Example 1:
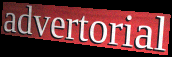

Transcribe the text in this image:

advertorial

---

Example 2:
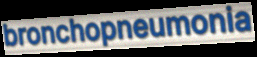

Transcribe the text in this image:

bronchopneumonia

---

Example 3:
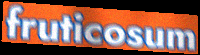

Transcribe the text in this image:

fruticosum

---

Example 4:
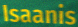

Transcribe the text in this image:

Isaanis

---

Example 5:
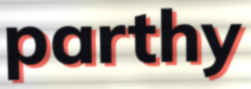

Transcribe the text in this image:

parthy